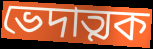
ভেদাত্মক